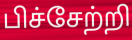
பிச்சேற்றி